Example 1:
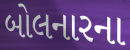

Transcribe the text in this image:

બોલનારના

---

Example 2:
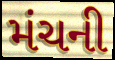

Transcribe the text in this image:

મંચની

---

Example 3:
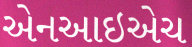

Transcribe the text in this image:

એનઆઇએચ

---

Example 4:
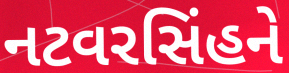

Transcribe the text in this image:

નટવરસિંહને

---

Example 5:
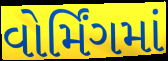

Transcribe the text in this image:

વોર્મિંગમાં